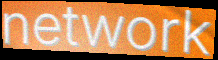
network